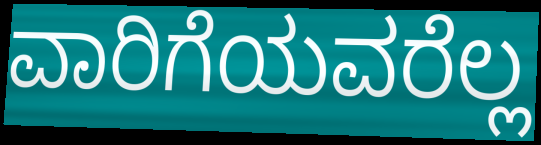
ವಾರಿಗೆಯವರೆಲ್ಲ